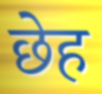
छेह